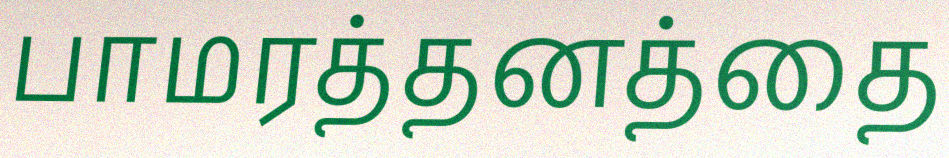
பாமரத்தனத்தை